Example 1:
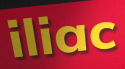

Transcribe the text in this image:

iliac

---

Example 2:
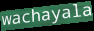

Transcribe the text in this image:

wachayala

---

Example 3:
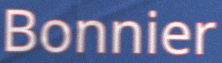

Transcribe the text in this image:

Bonnier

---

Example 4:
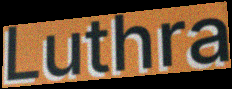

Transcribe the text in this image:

Luthra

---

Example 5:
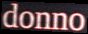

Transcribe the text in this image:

donno